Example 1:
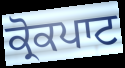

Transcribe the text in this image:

ਕ੍ਰੋਕਪਾਟ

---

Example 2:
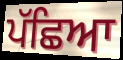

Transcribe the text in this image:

ਪੱਛਿਆ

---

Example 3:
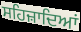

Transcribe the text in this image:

ਸਹਿਜ਼ਾਦਿਆਂ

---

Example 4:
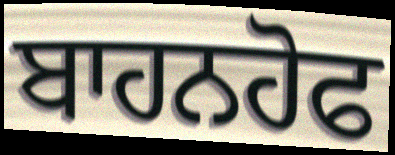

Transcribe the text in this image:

ਬਾਹਨਹੋਫ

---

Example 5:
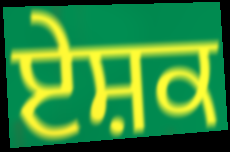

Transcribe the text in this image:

ਏਸ਼ਕ